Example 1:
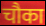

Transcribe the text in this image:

चौका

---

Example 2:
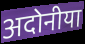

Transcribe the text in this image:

अदोनीया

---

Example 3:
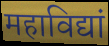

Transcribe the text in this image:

महाविद्यां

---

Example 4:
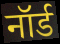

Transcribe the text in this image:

नॉर्ड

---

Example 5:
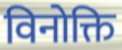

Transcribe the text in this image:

विनोक्ति